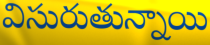
విసురుతున్నాయి